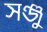
সঞ্জু